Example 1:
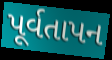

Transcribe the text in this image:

પૂર્વતાપન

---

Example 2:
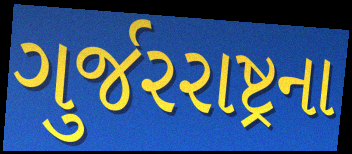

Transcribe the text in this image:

ગુર્જરરાષ્ટ્રના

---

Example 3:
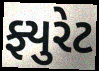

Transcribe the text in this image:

ફ્યુરેટ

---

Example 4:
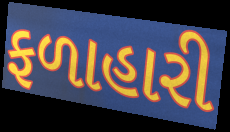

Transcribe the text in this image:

ફળાહારી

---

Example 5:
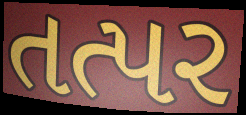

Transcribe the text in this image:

તત્પર